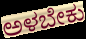
ಅಳಬೇಕು